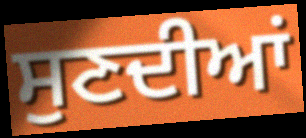
ਸੁਣਦੀਆਂ